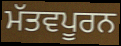
ਮੱਤਵਪੂਰਨ